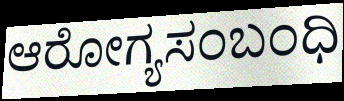
ಆರೋಗ್ಯಸಂಬಂಧಿ